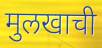
मुलखाची